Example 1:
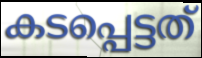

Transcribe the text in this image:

കടപ്പെട്ടത്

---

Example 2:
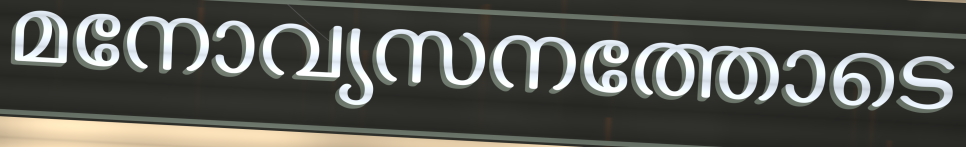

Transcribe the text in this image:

മനോവ്യസനത്തോടെ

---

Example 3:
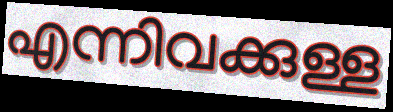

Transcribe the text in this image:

എന്നിവക്കുള്ള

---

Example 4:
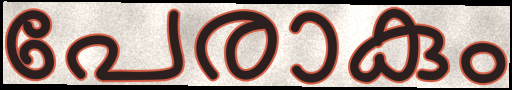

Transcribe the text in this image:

പേരാകും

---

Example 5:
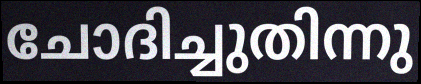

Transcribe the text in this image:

ചോദിച്ചുതിന്നു